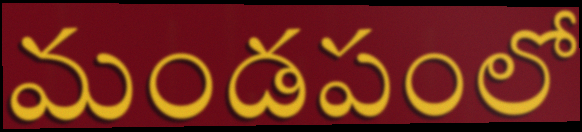
మండపంలో